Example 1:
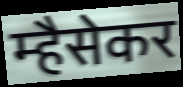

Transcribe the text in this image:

म्हैसेकर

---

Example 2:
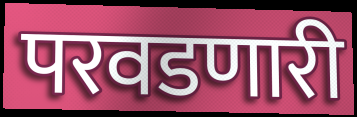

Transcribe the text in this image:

परवडणारी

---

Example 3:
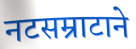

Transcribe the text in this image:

नटसम्राटाने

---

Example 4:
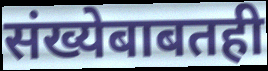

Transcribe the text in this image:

संख्येबाबतही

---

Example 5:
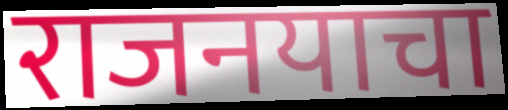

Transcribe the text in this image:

राजनयाचा